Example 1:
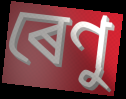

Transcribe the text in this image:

ৰেণু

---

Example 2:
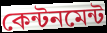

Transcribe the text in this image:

কেন্টনমেন্ট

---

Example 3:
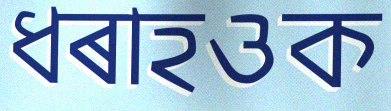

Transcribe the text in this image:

ধৰাহওক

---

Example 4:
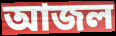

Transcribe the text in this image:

আজল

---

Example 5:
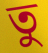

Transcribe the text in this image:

তু